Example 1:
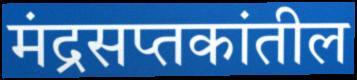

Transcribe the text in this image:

मंद्रसप्तकांतील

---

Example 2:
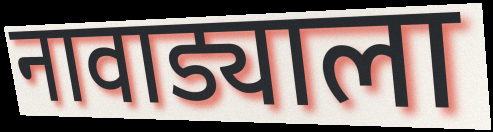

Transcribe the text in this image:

नावाड्याला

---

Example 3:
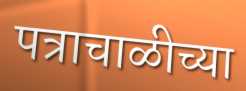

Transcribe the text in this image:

पत्राचाळीच्या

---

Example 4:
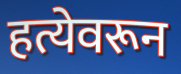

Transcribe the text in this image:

हत्येवरून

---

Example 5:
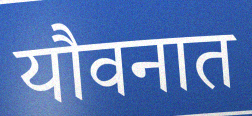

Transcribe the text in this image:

यौवनात